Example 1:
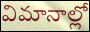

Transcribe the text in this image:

విమానాల్లో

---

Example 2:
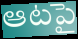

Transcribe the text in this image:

ఆటపై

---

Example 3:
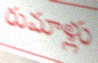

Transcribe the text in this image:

రుమాళ్లు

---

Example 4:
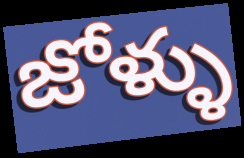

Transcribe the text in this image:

జోళ్ళు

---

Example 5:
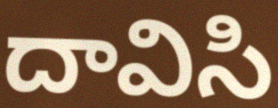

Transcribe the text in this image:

దావిసి